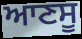
ਆਣਸੂ